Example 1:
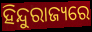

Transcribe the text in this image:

ହିନ୍ଦୁରାଜ୍ୟରେ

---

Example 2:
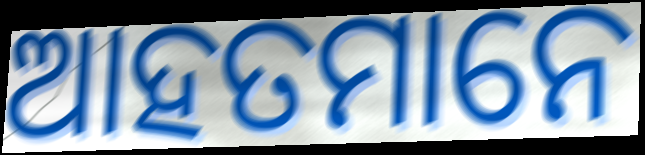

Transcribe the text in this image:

ଆହତମାନେ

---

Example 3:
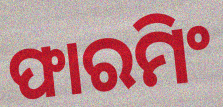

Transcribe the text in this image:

ଫାରମିଂ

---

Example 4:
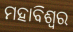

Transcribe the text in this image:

ମହାବିଶ୍ଵର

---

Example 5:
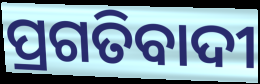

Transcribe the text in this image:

ପ୍ରଗତିବାଦୀ